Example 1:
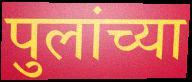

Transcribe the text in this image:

पुलांच्या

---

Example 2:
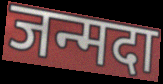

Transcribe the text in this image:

जन्मदा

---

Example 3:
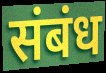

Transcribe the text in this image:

संबंध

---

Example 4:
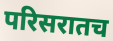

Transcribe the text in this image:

परिसरातच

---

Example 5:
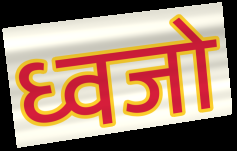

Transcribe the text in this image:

ध्वजो